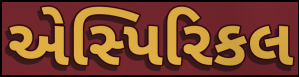
એસ્પિરિકલ